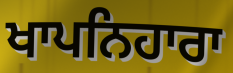
ਖਾਪਨਿਹਾਰਾ